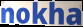
nokha